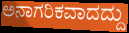
ಅನಾಗರಿಕವಾದದ್ದು